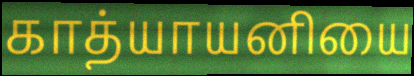
காத்யாயனியை